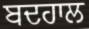
ਬਦਹਾਲ